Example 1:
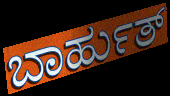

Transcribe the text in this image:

ಬಾರ್ಹುತ್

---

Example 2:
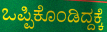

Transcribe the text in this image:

ಒಪ್ಪಿಕೊಂಡಿದ್ದಕ್ಕೆ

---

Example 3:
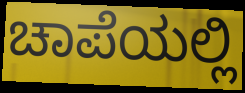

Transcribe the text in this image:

ಚಾಪೆಯಲ್ಲಿ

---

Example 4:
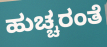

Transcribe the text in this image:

ಹುಚ್ಚರಂತೆ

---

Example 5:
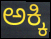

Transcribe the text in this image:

ಅಕ್ಕಿ